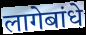
लागेबांधे